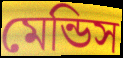
মেন্ডিস